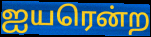
ஐயரென்ற